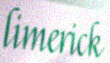
limerick